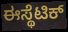
ಈಸ್ಥೆಟಿಕ್